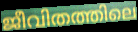
ജീവിതത്തിലെ